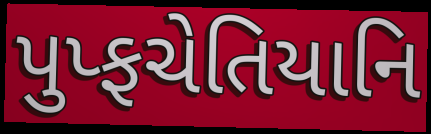
પુપ્ફચેતિયાનિ